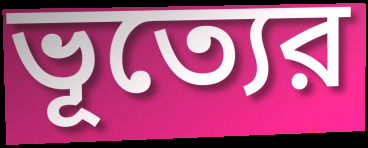
ভূত্যের